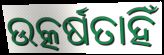
ଉତ୍କର୍ଷତାହିଁ